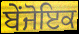
ਬੇਂਜੋਇਕ